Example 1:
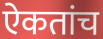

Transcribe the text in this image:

ऐकतांच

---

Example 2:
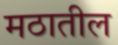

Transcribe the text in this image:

मठातील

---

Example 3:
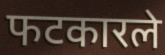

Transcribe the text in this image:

फटकारले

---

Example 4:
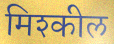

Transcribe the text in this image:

मिश्कील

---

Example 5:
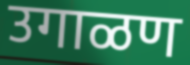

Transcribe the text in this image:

उगाळण